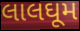
લાલઘૂમ